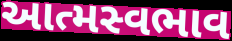
આત્મસ્વભાવ